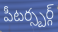
పీటర్స్బర్గ్